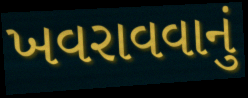
ખવરાવવાનું